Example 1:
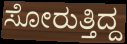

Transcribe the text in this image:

ಸೋರುತ್ತಿದ್ದ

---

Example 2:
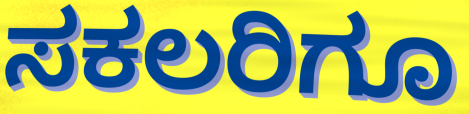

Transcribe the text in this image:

ಸಕಲರಿಗೂ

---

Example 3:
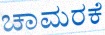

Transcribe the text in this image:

ಚಾಮರಕೆ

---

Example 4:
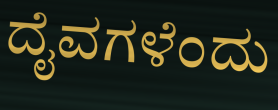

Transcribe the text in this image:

ದೈವಗಳೆಂದು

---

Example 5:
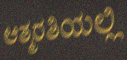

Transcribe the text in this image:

ಆತ್ಮರತಿಯಲ್ಲಿ